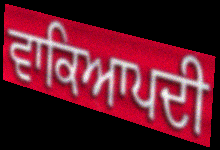
ਵਾਕਿਆਪਦੀ